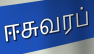
ஈசுவரப்